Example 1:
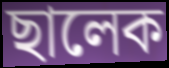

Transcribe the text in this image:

ছালেক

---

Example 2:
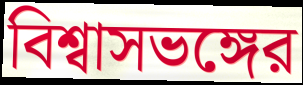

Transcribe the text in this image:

বিশ্বাসভঙ্গের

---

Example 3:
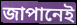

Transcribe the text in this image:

জাপানেই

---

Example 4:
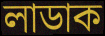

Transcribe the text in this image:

লাডাক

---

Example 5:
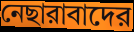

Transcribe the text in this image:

নেছারাবাদের